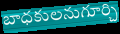
బాధకులనుగూర్చి